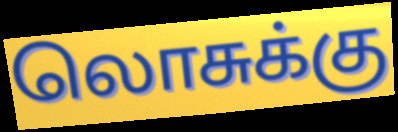
லொசுக்கு